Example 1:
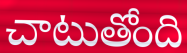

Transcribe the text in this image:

చాటుతోంది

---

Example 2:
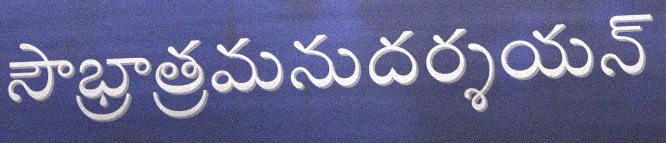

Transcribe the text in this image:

సౌభ్రాత్రమనుదర్శయన్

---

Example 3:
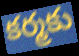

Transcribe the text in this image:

కర్మకు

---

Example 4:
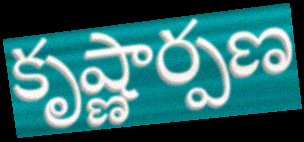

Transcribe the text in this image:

కృష్ణార్పణ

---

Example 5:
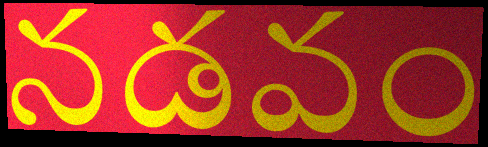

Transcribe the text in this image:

నడవం